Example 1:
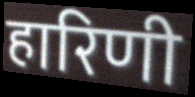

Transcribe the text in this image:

हारिणी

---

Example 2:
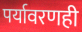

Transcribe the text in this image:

पर्यावरणही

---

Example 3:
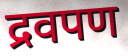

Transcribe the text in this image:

द्रवपण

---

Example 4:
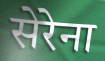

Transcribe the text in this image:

सेरेना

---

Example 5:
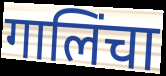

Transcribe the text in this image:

गालिंचा